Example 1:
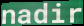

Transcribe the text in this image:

nadir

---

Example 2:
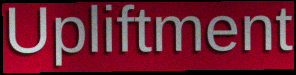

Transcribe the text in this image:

Upliftment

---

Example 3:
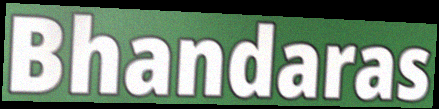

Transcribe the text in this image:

Bhandaras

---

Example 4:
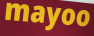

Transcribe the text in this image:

mayoo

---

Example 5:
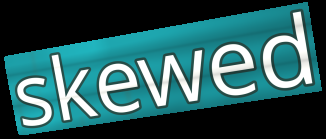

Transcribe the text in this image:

skewed